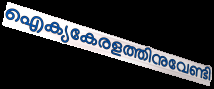
ഐക്യകേരളത്തിനുവേണ്ടി